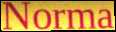
Norma